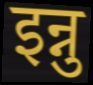
इन्नु